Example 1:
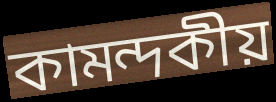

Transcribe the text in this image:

কামন্দকীয়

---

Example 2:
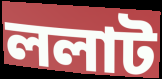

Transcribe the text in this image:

ললাট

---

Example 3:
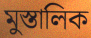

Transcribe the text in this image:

মুস্তালিক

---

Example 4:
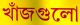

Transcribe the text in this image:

খাঁজগুলো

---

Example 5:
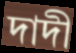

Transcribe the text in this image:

দাদী